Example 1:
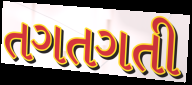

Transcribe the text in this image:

તગતગતી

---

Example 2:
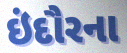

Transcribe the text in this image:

ઇંદૌરના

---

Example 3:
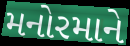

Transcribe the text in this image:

મનોરમાને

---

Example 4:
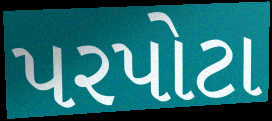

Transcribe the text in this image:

પરપોટા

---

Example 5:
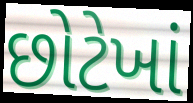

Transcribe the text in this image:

છોટેખાં